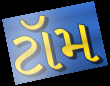
ટૉમ